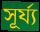
সূৰ্য্য